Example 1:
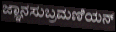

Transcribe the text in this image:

ಜ್ಞಾನಸುಬ್ರಮಣಿಯನ್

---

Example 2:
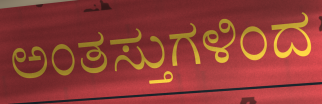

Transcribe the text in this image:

ಅಂತಸ್ತುಗಳಿಂದ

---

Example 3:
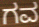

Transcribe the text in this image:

ಗವ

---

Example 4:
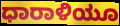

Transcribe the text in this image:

ಧಾರಾಳಿಯೂ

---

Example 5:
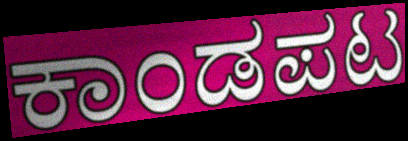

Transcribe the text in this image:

ಕಾಂಡಪಟ